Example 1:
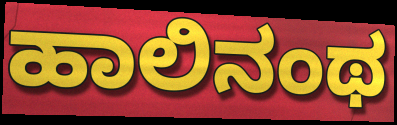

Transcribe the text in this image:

ಹಾಲಿನಂಥ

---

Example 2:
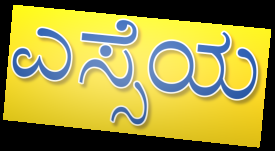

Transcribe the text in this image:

ಎಸ್ಸೆಯ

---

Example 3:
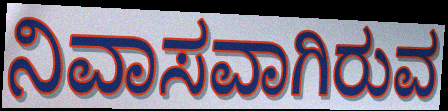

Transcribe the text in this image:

ನಿವಾಸವಾಗಿರುವ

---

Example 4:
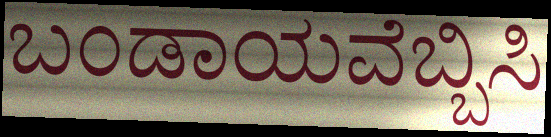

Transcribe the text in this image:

ಬಂಡಾಯವೆಬ್ಬಿಸಿ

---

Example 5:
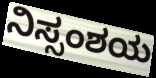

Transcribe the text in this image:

ನಿಸ್ಸಂಶಯ